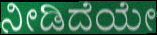
ನೀಡಿದೆಯೇ